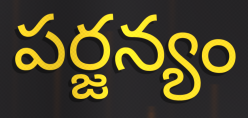
పర్జన్యం